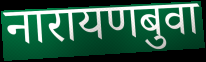
नारायणबुवा